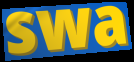
swa